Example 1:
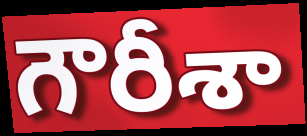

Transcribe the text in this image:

గౌరీశా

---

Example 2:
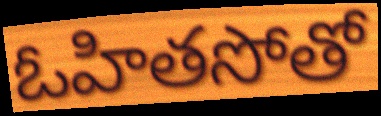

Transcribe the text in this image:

ఓహితసోతో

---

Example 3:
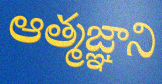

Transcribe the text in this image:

ఆత్మజ్ఞాని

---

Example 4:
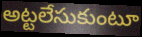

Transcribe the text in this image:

అట్టలేసుకుంటూ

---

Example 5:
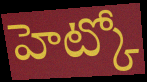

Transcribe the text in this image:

హెట్కో